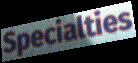
Specialties